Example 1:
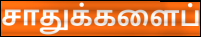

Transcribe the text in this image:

சாதுக்களைப்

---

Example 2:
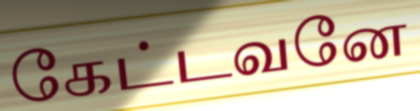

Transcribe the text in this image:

கேட்டவனே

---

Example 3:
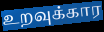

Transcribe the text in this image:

உறவுக்கார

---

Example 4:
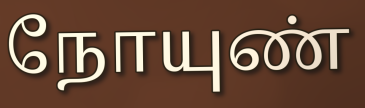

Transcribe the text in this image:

நோயுண்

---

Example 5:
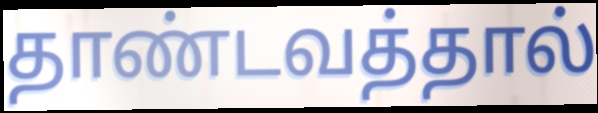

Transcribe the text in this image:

தாண்டவத்தால்